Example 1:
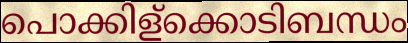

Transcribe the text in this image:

പൊക്കിള്ക്കൊടിബന്ധം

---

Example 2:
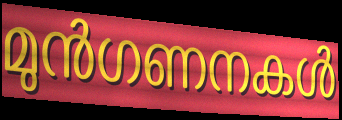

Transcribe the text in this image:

മുൻഗണനകൾ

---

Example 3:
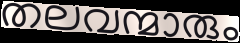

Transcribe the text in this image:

തലവന്മാരും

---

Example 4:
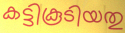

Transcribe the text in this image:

കട്ടികൂടിയതു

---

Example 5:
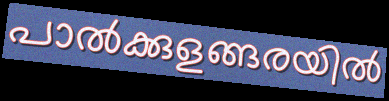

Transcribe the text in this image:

പാൽക്കുളങ്ങരയിൽ